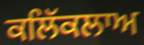
ਕਲਿੱਕਲਾਅ